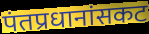
पंतप्रधानांसकट